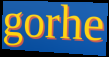
gorhe